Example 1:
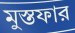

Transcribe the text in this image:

মুস্তফার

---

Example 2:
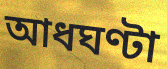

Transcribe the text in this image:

আধঘণ্টা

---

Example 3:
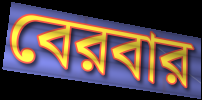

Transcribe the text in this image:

বেরবার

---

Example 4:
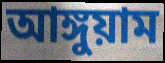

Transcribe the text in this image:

আঙ্গুয়াম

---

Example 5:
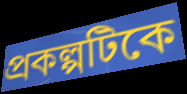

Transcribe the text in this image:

প্রকল্পটিকে